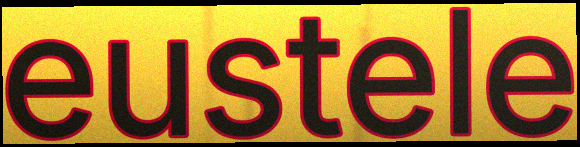
eustele